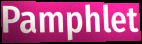
Pamphlet